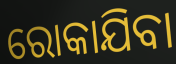
ରୋକାଯିବା